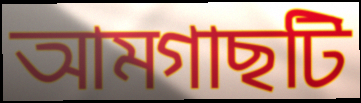
আমগাছটি